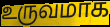
உருவமாக